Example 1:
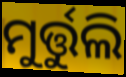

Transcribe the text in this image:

ମୁର୍ତ୍ତୁଲି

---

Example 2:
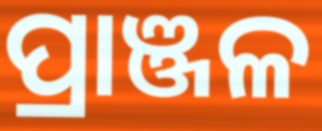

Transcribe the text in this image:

ପ୍ରାଞ୍ଜଳ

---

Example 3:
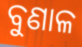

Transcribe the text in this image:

ବୁଣାଳ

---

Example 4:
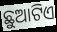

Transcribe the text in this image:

ଛୁଆଟିଏ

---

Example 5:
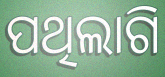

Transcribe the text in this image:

ପଥିଲାଗି